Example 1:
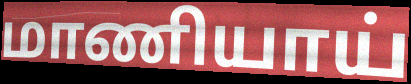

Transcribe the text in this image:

மாணியாய்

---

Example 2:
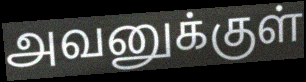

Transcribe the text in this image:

அவனுக்குள்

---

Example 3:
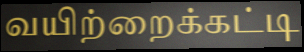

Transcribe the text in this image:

வயிற்றைக்கட்டி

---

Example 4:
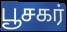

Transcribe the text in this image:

பூசகர்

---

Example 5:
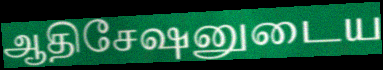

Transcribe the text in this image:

ஆதிசேஷனுடைய